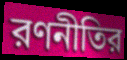
রণনীতির